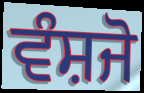
ਵੰਸ਼ਜੋ